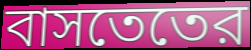
বাসতেতের